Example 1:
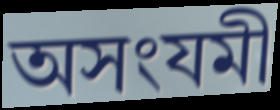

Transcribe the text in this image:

অসংযমী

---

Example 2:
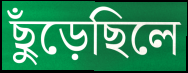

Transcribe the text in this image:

ছুঁড়েছিলে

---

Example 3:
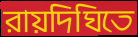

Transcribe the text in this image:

রায়দিঘিতে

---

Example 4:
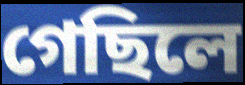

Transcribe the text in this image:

গেছিলে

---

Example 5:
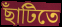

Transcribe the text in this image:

ছাঁটিতে